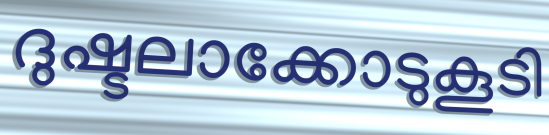
ദുഷ്ടലാക്കോടുകൂടി